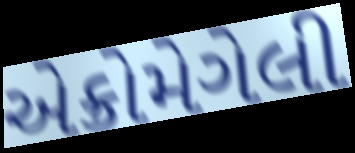
એક્રોમેગેલી